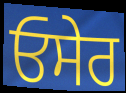
ਓਸੇਰ